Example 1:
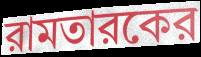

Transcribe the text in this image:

রামতারকের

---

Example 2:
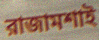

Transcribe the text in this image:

রাজামশাই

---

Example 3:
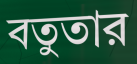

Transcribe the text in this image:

বতুতার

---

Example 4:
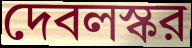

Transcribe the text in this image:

দেবলস্কর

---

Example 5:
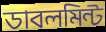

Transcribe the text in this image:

ডাবলমিন্ট